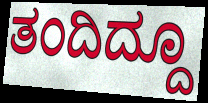
ತಂದಿದ್ದೂ